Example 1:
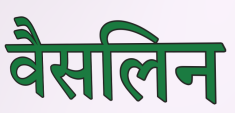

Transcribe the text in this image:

वैसलिन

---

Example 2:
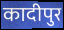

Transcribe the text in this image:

कादीपुर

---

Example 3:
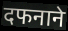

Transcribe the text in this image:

दफनाने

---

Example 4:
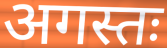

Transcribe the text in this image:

अगस्तः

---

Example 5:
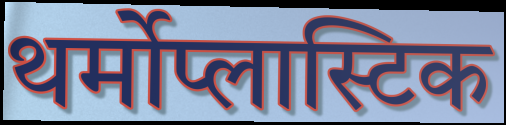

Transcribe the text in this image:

थर्मोप्लास्टिक